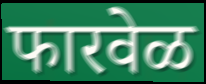
फारवेळ